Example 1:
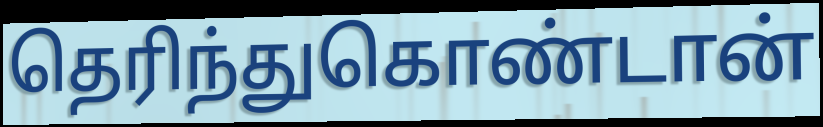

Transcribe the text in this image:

தெரிந்துகொண்டான்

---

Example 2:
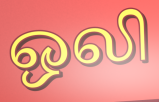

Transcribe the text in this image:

ஒலி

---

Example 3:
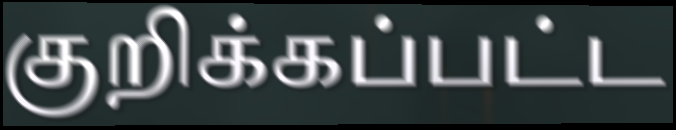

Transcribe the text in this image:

குறிக்கப்பட்ட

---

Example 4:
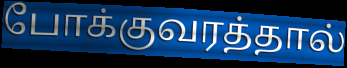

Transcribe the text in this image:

போக்குவரத்தால்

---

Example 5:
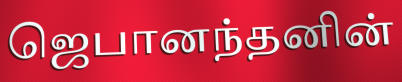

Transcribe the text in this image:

ஜெபானந்தனின்